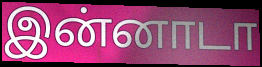
இன்னாடா